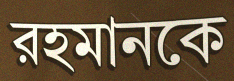
রহমানকে